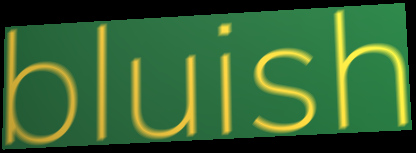
bluish